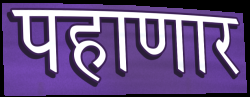
पहाणार